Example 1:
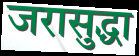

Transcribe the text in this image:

जरासुद्धा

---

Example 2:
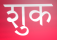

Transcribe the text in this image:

शुक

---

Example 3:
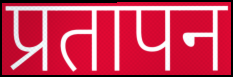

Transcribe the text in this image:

प्रतापन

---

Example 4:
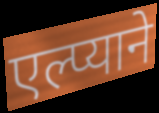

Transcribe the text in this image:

एल्प्याने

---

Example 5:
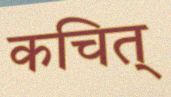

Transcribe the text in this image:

कचित्